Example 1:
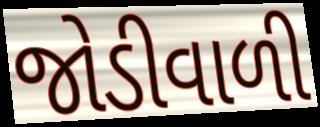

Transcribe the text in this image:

જોડીવાળી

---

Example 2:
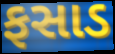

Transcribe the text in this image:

ફસાડ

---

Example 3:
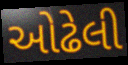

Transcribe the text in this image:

ઓઢેલી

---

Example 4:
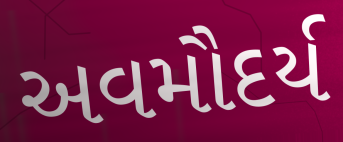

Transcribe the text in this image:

અવમૌદર્ય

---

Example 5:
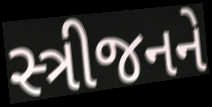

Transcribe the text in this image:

સ્ત્રીજનને